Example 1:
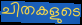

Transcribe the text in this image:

ചിതകളുടെ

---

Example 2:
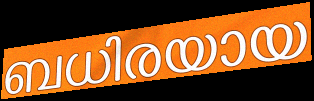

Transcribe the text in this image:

ബധിരയായ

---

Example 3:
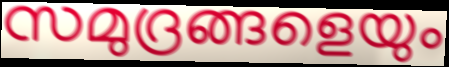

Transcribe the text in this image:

സമുദ്രങ്ങളെയും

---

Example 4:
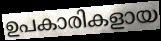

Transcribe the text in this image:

ഉപകാരികളായ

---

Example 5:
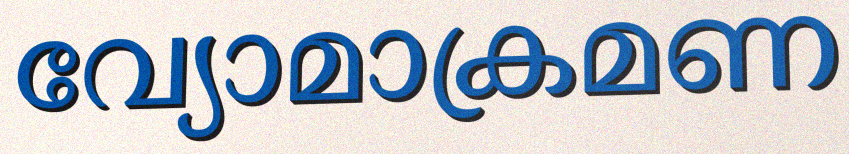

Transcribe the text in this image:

വ്യോമാക്രമണ